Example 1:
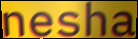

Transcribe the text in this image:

nesha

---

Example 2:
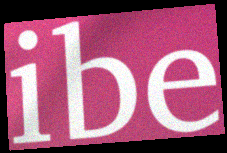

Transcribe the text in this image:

ibe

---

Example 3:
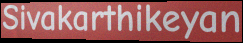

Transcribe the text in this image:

Sivakarthikeyan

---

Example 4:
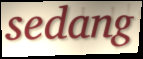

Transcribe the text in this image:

sedang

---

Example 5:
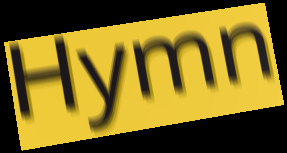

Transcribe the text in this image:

Hymn